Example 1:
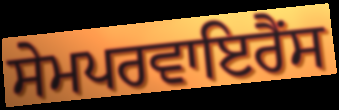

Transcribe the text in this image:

ਸੇਮਪਰਵਾਇਰੈਂਸ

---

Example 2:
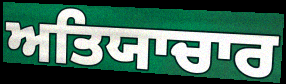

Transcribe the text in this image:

ਅਤਿਯਾਚਾਰ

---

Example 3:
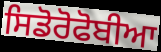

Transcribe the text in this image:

ਸਿਡੋਰੋਫੋਬੀਆ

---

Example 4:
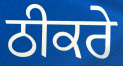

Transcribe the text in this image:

ਠੀਕਰੇ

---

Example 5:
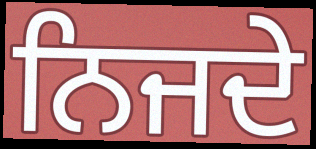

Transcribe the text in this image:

ਨਿਜਦੇ